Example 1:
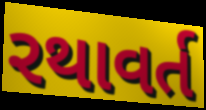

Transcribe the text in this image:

રથાવર્ત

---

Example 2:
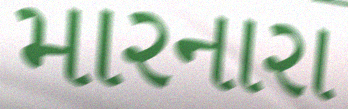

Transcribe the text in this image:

મારનારા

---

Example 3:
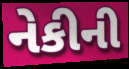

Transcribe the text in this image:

નેકીની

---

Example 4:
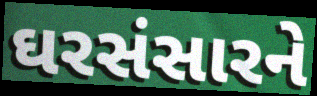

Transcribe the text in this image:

ઘરસંસારને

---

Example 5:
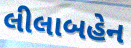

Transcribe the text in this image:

લીલાબહેન